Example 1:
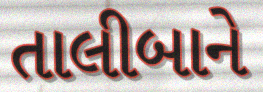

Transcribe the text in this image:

તાલીબાને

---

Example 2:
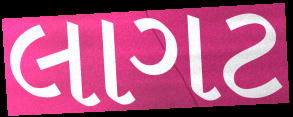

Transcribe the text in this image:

લાગટ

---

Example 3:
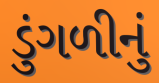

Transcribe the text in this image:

ડુંગળીનું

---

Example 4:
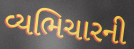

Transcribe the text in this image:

વ્યભિચારની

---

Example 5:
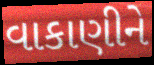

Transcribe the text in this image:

વાકાણીને